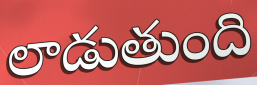
లాడుతుంది